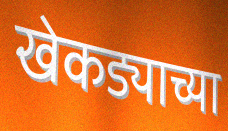
खेकड्याच्या